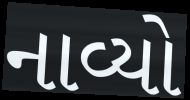
નાવ્યો